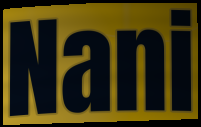
Nani